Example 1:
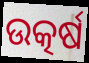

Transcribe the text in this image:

ଉତ୍କର୍ଷ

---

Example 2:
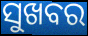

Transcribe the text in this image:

ସୁଖବର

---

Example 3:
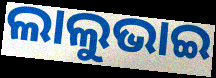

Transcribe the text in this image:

ଲାଲୁଭାଇ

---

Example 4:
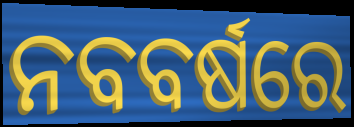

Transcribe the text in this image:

ନବବର୍ଷରେ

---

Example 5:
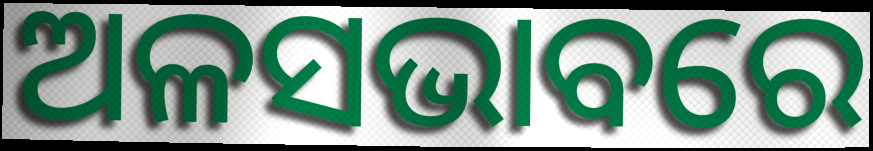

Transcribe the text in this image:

ଅଳସଭାବରେ